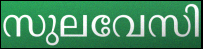
സുലവേസി